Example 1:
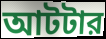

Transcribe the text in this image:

আটটার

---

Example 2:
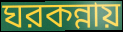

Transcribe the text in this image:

ঘরকন্নায়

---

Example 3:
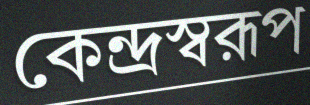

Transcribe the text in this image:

কেন্দ্রস্বরূপ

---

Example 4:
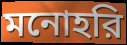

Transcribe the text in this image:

মনোহরি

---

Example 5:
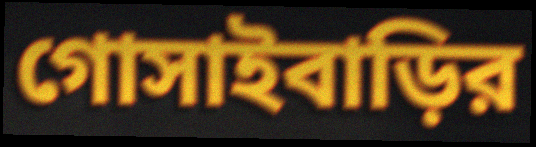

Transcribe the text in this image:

গোসাইবাড়ির